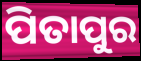
ପିତାପୁର